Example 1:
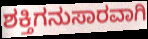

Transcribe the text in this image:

ಶಕ್ತಿಗನುಸಾರವಾಗಿ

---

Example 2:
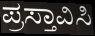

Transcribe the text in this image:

ಪ್ರಸ್ತಾವಿಸಿ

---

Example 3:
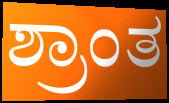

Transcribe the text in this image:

ಶ್ರಾಂತ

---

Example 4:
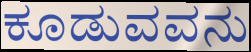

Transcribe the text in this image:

ಕೂಡುವವನು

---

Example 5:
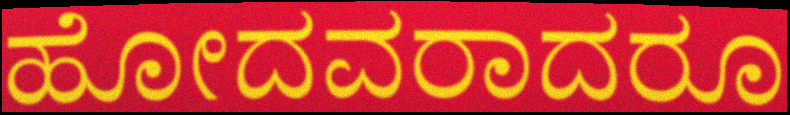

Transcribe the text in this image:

ಹೋದವರಾದರೂ